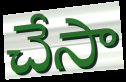
చేసా